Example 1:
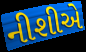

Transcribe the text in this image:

નીશીએ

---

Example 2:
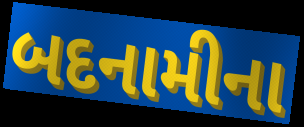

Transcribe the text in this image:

બદનામીના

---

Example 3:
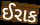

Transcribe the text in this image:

ઈરાક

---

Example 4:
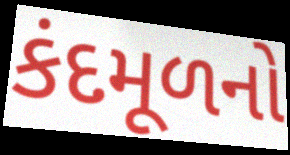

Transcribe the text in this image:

કંદમૂળનો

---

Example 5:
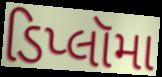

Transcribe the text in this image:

ડિપ્લૉમા